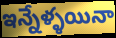
ఇన్నేళ్ళయినా